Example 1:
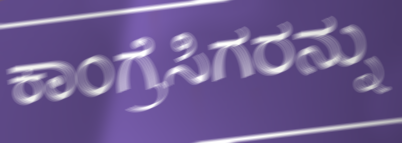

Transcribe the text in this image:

ಕಾಂಗ್ರೆಸಿಗರನ್ನು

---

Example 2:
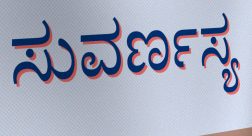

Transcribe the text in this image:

ಸುವರ್ಣಸ್ಯ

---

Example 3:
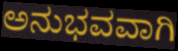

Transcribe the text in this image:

ಅನುಭವವಾಗಿ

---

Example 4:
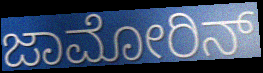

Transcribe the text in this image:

ಜಾಮೋರಿನ್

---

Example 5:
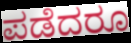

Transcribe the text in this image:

ಪಡೆದರೂ